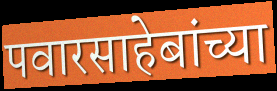
पवारसाहेबांच्या